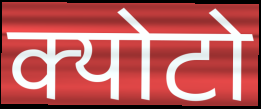
क्‍योटो